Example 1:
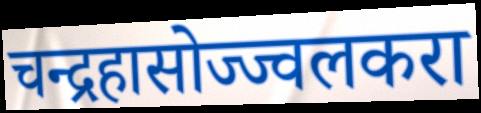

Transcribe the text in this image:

चन्द्रहासोज्ज्वलकरा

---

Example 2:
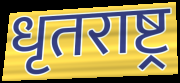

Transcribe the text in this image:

धृतराष्ट्र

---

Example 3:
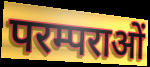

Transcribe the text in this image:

परम्पराओं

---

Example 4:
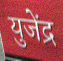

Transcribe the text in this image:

युजेंद्र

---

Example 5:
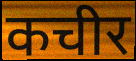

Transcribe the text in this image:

कचीर